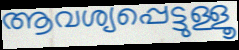
ആവശ്യപ്പെട്ടുള്ളൂ